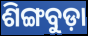
ଶିଙ୍ଗବୁଡ଼ା